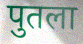
पुतला